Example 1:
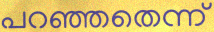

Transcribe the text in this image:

പറഞ്ഞതെന്ന്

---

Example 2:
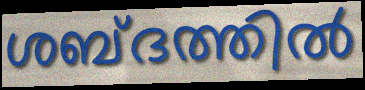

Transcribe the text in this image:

ശബ്ദത്തിൽ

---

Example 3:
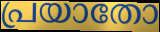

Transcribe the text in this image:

പ്രയാതോ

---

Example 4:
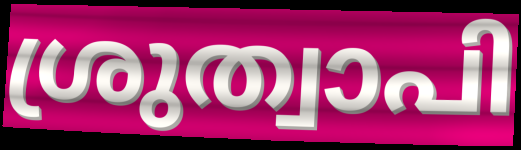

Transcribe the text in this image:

ശ്രുത്വാപി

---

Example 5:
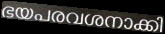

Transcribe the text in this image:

ഭയപരവശനാക്കി